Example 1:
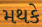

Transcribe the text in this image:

મથકે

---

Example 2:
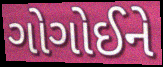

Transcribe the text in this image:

ગોગોઈને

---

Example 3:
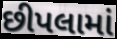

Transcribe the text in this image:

છીપલામાં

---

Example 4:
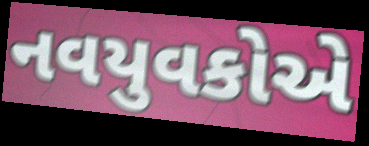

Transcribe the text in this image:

નવયુવકોએ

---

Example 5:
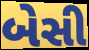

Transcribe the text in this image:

બેસી